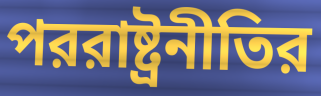
পররাষ্ট্রনীতির